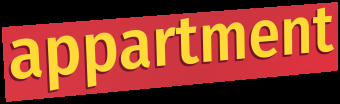
appartment